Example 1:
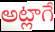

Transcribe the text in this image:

అట్లాగే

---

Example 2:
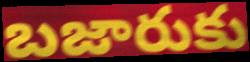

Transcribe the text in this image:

బజారుకు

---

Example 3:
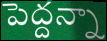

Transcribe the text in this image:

పెద్దన్నా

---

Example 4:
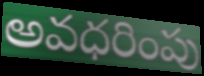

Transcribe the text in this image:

అవధరింపు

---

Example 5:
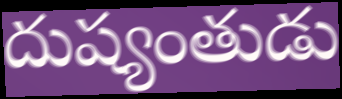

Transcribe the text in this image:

దుష్యంతుడు